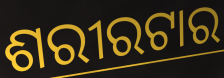
ଶରୀରଟାର